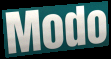
Modo